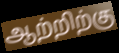
ஆற்றிற்கு